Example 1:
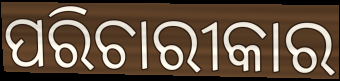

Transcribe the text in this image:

ପରିଚାରୀକାର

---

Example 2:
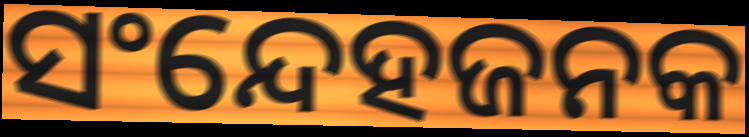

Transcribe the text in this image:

ସଂନ୍ଦେହଜନକ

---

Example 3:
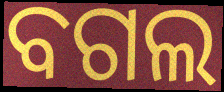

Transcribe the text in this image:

ବଗଲ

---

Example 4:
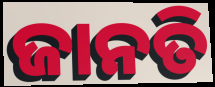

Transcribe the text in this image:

ଜାନତି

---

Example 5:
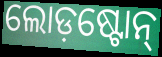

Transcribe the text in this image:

ଲୋଡ଼ଷ୍ଟୋନ୍